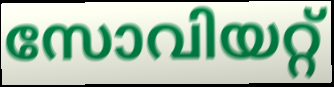
സോവിയറ്റ്